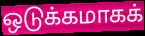
ஒடுக்கமாகக்